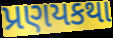
પ્રણયકથા